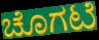
ಚೊಗಟೆ